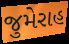
જુમેરાહ